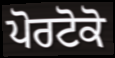
ਪੋਰਟੋਕੋ